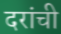
दरांची